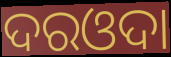
ଦରଓଦା